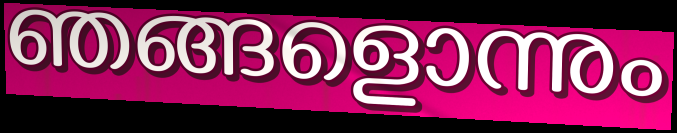
ഞങ്ങളൊന്നും